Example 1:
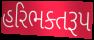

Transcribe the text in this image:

હરિભક્તરૂપ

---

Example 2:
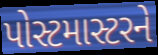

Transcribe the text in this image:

પોસ્ટમાસ્ટરને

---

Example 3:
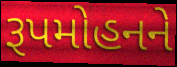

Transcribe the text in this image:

રૂપમોહનને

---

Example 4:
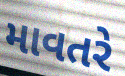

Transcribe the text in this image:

માવતરે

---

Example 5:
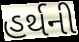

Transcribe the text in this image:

હર્થની